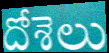
దోశెలు